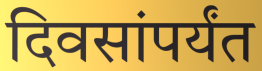
दिवसांपर्यंत